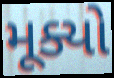
મૂક્યો